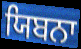
ਯਿਬਨਾ